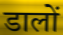
डालों